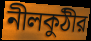
নীলকুঠীর